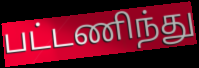
பட்டணிந்து